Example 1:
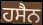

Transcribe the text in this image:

ਹਸੈਨ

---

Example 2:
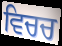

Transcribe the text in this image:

ਵਿਚਚ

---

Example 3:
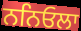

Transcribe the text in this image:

ਨਨਿਓਲਾ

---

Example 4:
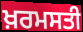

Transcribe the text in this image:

ਖ਼ਰਮਸਤੀ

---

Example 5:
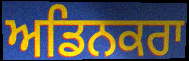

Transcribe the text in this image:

ਅਡਿਨਕਰਾ